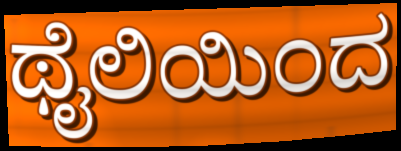
ಥೈಲಿಯಿಂದ